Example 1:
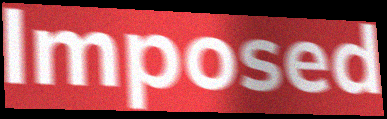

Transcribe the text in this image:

Imposed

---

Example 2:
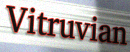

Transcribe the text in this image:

Vitruvian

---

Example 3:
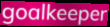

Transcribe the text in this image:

goalkeeper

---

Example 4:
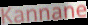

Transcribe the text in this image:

Kannane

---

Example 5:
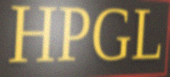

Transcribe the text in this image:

HPGL